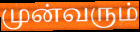
முன்வரும்